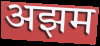
अझम